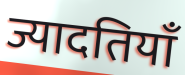
ज्यादतियाँ